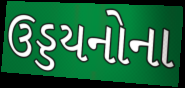
ઉડ્ડયનોના